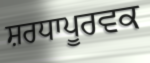
ਸ਼ਰਧਾਪੂਰਵਕ